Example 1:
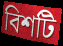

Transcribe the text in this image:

বিশটি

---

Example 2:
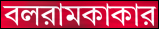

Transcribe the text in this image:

বলরামকাকার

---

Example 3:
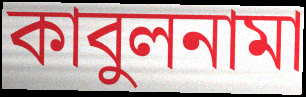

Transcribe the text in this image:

কাবুলনামা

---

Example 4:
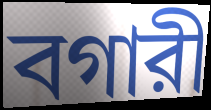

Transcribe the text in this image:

বগারী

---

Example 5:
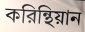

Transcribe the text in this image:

করিন্থিয়ান